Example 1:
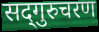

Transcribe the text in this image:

सद्‍गुरुचरण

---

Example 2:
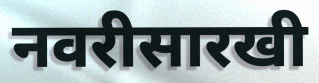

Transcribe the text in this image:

नवरीसारखी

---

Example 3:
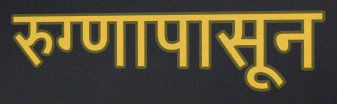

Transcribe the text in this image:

रुग्णापासून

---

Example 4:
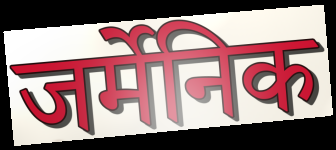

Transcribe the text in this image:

जर्मेनिक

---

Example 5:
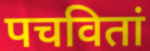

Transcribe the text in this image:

पचवितां